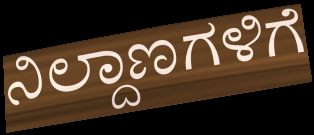
ನಿಲ್ದಾಣಗಳಿಗೆ